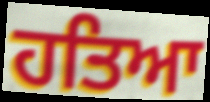
ਹਤਿਆ